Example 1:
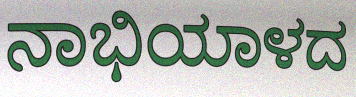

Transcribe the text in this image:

ನಾಭಿಯಾಳದ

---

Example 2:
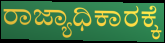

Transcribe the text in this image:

ರಾಜ್ಯಾಧಿಕಾರಕ್ಕೆ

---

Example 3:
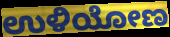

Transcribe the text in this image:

ಉಳಿಯೋಣ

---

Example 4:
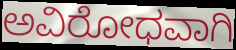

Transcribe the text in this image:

ಅವಿರೋಧವಾಗಿ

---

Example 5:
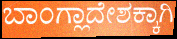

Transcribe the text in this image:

ಬಾಂಗ್ಲಾದೇಶಕ್ಕಾಗಿ